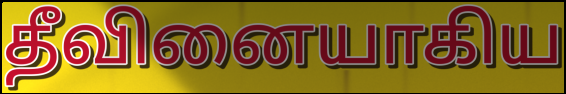
தீவினையாகிய